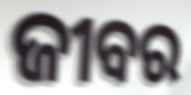
ଜୀବର